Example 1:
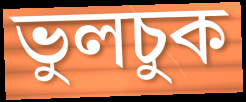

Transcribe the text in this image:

ভুলচুক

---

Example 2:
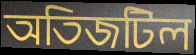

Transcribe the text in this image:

অতিজটিল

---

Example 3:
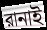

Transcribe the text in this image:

রানাই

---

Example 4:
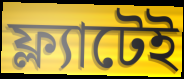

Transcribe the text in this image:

ফ্ল্যাটেই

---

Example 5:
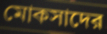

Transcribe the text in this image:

মোকসাদের